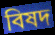
বিষদ